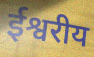
ईश्वरीय